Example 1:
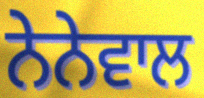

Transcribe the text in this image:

ਨੇਨੇਵਾਲ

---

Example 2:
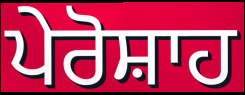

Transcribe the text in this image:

ਪੇਰੋਸ਼ਾਹ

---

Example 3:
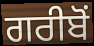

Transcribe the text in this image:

ਗਰੀਬੋਂ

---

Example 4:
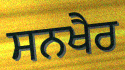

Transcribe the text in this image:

ਸਨਖੈਰ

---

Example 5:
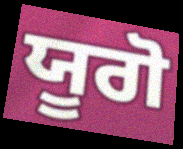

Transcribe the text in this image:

ਯੂਗੋ